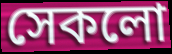
সেকলো